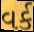
વર્ક